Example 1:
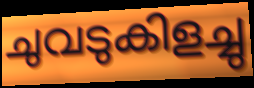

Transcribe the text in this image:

ചുവടുകിളച്ചു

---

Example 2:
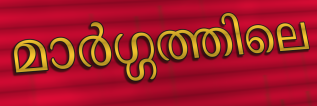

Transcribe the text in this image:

മാർഗ്ഗത്തിലെ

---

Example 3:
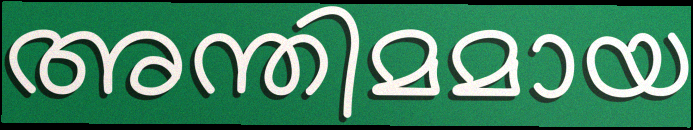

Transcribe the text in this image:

അന്തിമമായ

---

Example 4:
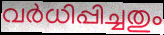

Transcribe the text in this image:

വർധിപ്പിച്ചതും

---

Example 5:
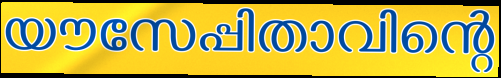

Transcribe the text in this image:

യൗസേപ്പിതാവിന്റെ